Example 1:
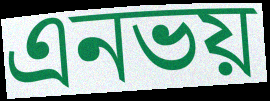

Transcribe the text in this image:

এনভয়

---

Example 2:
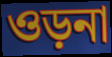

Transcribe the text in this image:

ওড়না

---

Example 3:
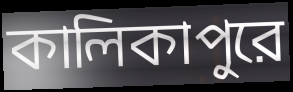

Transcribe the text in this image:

কালিকাপুরে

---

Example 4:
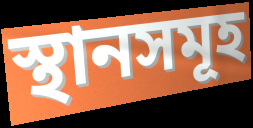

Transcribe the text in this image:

স্থানসমূহ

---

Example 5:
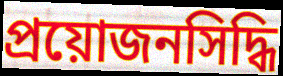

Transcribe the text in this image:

প্রয়োজনসিদ্ধি